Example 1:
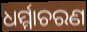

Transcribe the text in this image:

ଧର୍ମ୍ମାଚରଣ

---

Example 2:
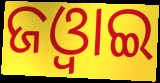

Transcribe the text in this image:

ଜଓ୍ବାଇ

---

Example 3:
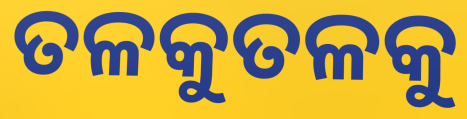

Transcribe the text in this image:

ତଳକୁତଳକୁ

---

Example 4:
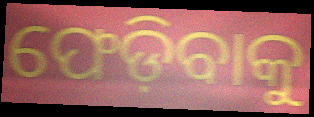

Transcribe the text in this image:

ଫେଡ଼ିବାକୁ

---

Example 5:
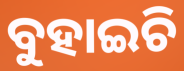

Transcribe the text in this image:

ବୁହାଇଚି